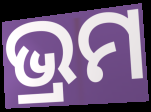
ଭ୍ରମ